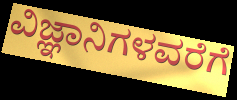
ವಿಜ್ಞಾನಿಗಳವರೆಗೆ